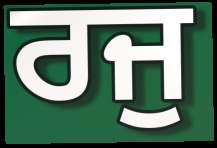
ਰਜੁ